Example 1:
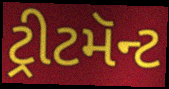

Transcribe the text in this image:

ટ્રીટમૅન્ટ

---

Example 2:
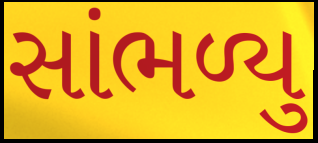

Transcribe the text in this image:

સાંભળ્યુ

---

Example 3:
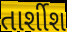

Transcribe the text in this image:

તાર્શીશ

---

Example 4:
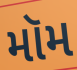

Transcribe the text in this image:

મૉમ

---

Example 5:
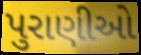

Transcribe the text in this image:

પુરાણીઓ